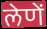
लेणें